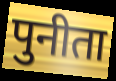
पुनीता